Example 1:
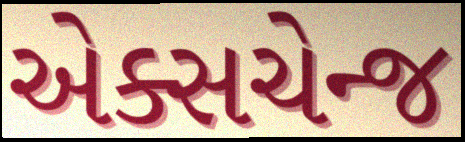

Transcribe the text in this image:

એક્સચેન્જ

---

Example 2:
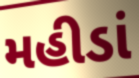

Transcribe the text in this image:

મહીડાં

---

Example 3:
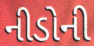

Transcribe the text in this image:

નીડોની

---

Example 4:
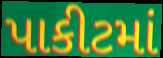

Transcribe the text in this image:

પાકીટમાં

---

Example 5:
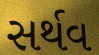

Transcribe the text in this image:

સર્થવ